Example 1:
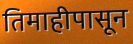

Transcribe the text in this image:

तिमाहीपासून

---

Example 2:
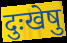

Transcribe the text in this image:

दुःखेषु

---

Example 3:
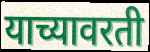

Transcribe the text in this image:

याच्यावरती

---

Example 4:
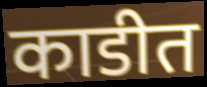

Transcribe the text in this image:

काडीत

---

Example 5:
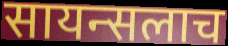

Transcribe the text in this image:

सायन्सलाच